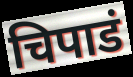
चिपाडं